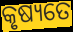
କୃଷ୍ୟତେ